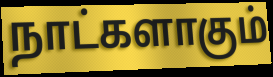
நாட்களாகும்